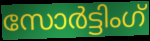
സോർട്ടിംഗ്